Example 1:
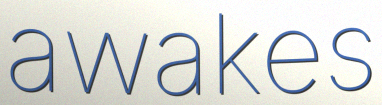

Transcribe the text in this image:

awakes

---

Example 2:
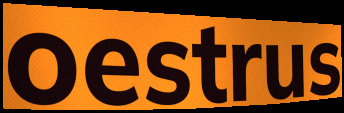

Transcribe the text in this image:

oestrus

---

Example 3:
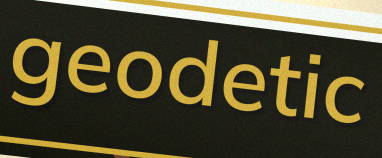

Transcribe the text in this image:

geodetic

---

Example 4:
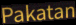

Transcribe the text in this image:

Pakatan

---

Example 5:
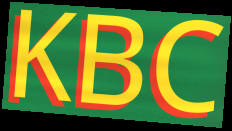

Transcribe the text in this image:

KBC